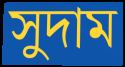
সুদাম